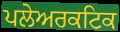
ਪਲੇਅਰਕਟਿਕ